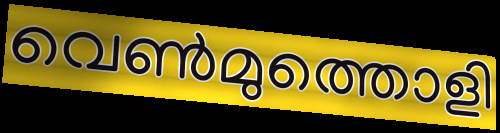
വെൺമുത്തൊളി